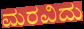
ಮರವಿದು